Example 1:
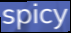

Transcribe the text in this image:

spicy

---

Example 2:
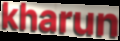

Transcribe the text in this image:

kharun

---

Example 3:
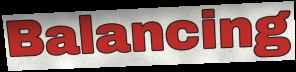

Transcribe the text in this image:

Balancing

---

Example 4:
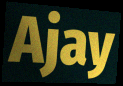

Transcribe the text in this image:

Ajay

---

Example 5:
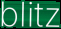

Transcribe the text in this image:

blitz